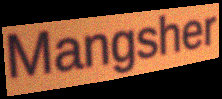
Mangsher